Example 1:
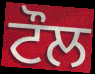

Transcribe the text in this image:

ਟੌਲ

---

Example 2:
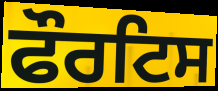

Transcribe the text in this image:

ਫੌਰਟਿਸ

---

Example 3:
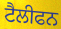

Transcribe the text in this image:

ਟੈਲੀਫਨ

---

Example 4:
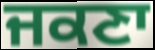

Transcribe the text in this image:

ਜਕਣਾ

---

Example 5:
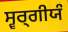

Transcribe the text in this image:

ਸ੍ਵਰ੍ਗੀਯੰ